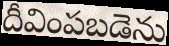
దీవింపబడెను